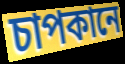
চাপকানে